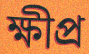
ক্ষীপ্ৰ